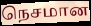
நெசமான